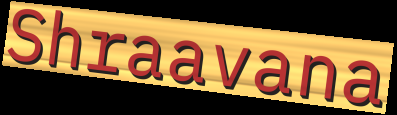
Shraavana